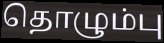
தொழும்பு